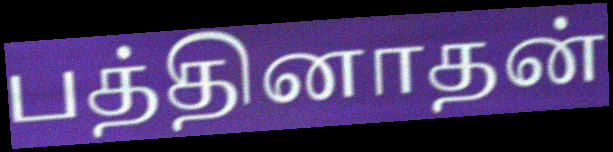
பத்தினாதன்